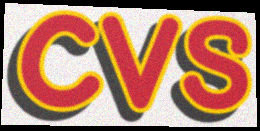
cvs